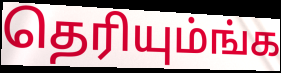
தெரியும்ங்க